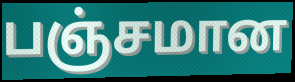
பஞ்சமான